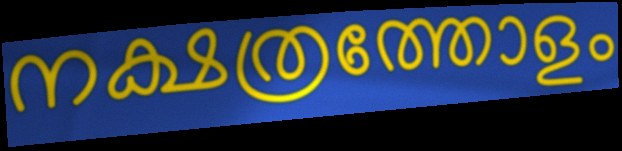
നക്ഷത്രത്തോളം